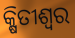
କ୍ଷିତୀଶ୍ୱର